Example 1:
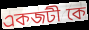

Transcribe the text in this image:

একজটীকে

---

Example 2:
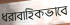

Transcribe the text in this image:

ধরাবাহিকভাবে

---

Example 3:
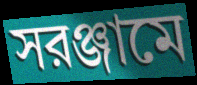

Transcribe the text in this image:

সরঞ্জামে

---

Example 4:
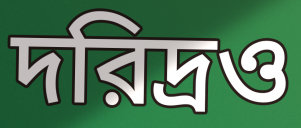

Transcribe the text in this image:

দরিদ্রও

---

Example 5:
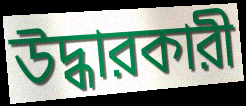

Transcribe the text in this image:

উদ্ধারকারী